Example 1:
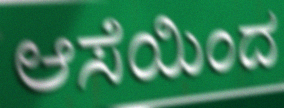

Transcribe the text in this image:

ಆಸೆಯಿಂದ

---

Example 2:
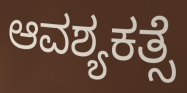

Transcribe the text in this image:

ಆವಶ್ಯಕತ್ಸೆ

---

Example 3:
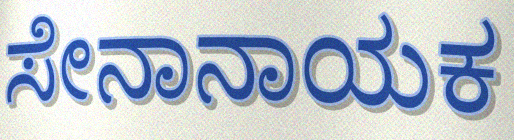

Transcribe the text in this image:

ಸೇನಾನಾಯಕ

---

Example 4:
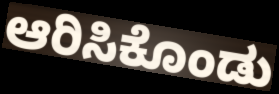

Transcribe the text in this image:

ಆರಿಸಿಕೊಂಡು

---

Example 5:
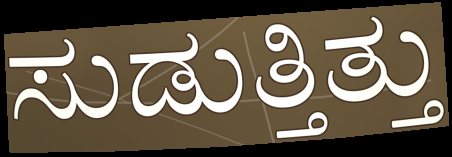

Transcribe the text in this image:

ಸುಡುತ್ತಿತ್ತು